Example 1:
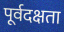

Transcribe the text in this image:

पूर्वदक्षता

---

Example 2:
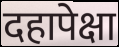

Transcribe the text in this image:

दहापेक्षा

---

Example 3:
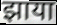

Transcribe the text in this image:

झाया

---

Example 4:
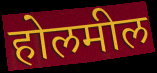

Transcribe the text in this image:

होलमील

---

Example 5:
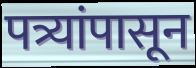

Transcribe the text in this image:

पत्र्यांपासून